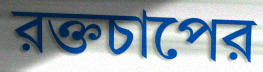
রক্তচাপের